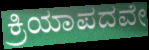
ಕ್ರಿಯಾಪದವೇ